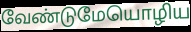
வேண்டுமேயொழிய